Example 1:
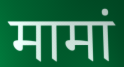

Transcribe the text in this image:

मामां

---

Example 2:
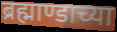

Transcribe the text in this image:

ब्रह्माण्डाच्या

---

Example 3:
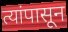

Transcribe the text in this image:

त्यांपासून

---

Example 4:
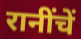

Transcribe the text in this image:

रानींचें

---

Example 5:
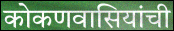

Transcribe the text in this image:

कोकणवासियांची